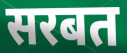
सरबत